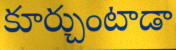
కూర్చుంటాడా